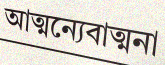
আত্মন্যেবাত্মনা